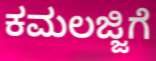
ಕಮಲಜ್ಜಿಗೆ